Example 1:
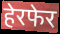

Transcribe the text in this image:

हेरफेर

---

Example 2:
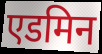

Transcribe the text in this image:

एडमिन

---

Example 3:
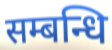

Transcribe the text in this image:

सम्बन्धि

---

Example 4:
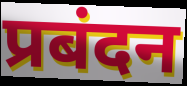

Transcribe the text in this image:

प्रबंदन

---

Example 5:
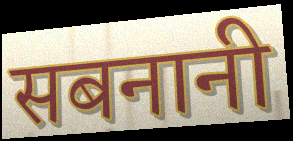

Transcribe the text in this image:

सबनानी